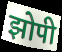
झोपी